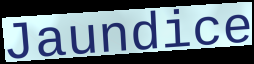
Jaundice